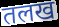
तलख